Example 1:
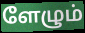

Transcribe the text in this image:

ளேழும்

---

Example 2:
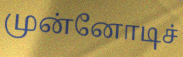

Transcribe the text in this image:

முன்னோடிச்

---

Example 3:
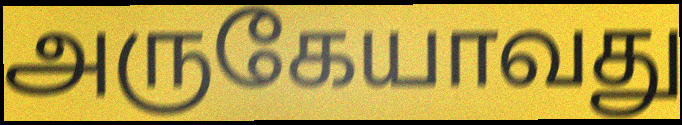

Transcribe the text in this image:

அருகேயாவது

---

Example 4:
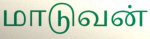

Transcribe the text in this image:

மாடுவன்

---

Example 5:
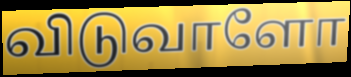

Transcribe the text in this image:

விடுவாளோ